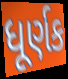
ધૂર્ણક